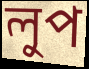
লুপ